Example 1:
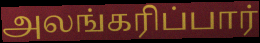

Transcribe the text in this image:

அலங்கரிப்பார்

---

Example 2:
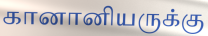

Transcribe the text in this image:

கானானியருக்கு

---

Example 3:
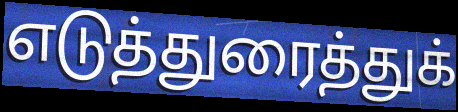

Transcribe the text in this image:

எடுத்துரைத்துக்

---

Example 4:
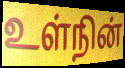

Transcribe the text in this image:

உள்நின்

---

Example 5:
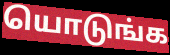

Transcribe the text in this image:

யொடுங்க